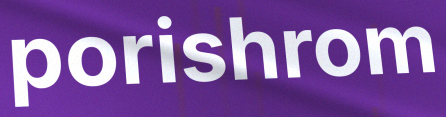
porishrom